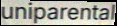
uniparental